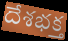
దేశభక్త